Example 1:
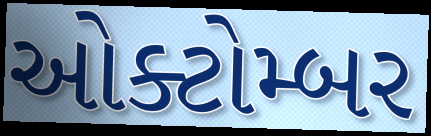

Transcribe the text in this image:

ઓક્ટોમ્બર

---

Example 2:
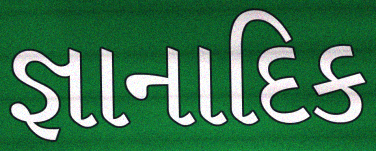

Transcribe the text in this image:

જ્ઞાનાદિક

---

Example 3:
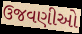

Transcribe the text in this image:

ઉજવણીઓ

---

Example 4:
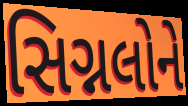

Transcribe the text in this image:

સિગ્નલોને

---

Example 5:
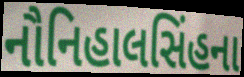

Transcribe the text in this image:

નૌનિહાલસિંહના